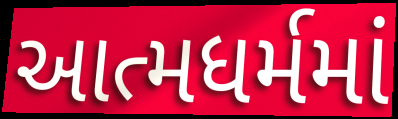
આત્મધર્મમાં